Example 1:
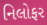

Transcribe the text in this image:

નિલોફર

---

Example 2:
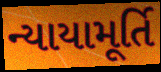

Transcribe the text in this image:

ન્યાયામૂર્તિ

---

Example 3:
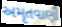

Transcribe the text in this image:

અમૃતવાણી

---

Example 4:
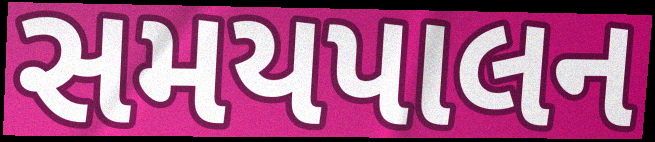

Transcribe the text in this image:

સમયપાલન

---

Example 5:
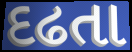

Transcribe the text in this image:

દઢતા